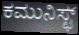
ಕಮುನಿಸ್ಟ್